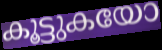
കൂട്ടുകയോ